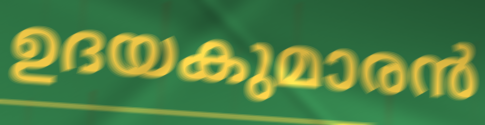
ഉദയകുമാരൻ